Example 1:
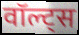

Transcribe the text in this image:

वॉल्ट्स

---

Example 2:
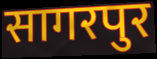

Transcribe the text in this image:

सागरपुर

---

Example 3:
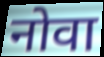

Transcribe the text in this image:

नोवा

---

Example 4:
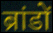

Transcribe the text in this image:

ब्रांडों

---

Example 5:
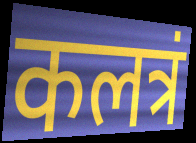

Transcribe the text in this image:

कलत्रं